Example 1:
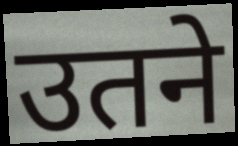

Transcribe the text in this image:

उतने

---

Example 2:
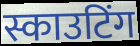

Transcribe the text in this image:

स्काउटिंग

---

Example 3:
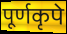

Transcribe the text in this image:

पूर्णकृपे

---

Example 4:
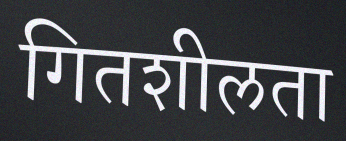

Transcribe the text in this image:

गितशीलता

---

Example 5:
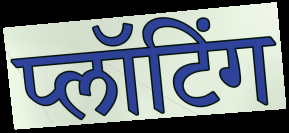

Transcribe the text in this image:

प्लॉटिंग